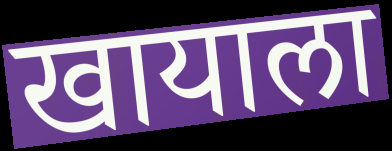
खायाला